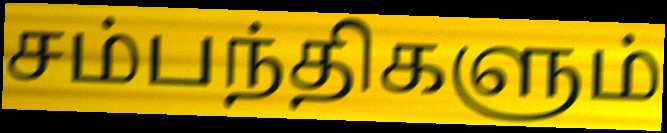
சம்பந்திகளும்